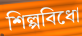
শিল্পবিধো